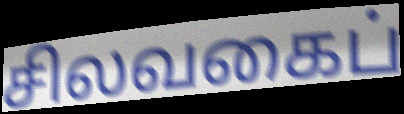
சிலவகைப்